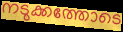
നടുക്കത്തോടെ